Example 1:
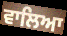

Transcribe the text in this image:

ਵਾਲਿਆ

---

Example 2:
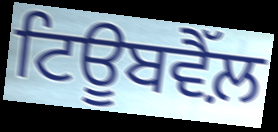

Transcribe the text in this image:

ਟਿਊਬਵੈੱਲ਼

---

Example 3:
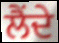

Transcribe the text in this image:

ਲੈਂਦੇ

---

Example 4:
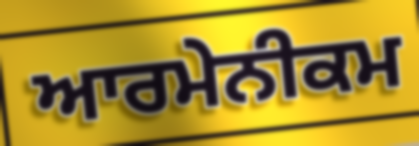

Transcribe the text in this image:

ਆਰਮੇਨੀਕਮ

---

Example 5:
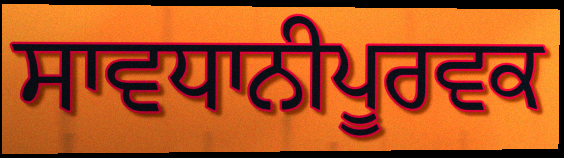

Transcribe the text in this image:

ਸਾਵਧਾਨੀਪੂਰਵਕ